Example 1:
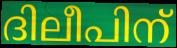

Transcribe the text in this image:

ദിലീപിന്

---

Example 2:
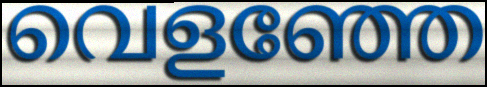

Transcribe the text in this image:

വെളഞ്ഞേ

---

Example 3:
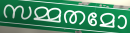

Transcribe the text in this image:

സമ്മതമോ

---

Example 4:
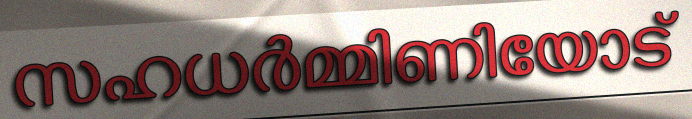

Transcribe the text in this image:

സഹധർമ്മിണിയോട്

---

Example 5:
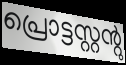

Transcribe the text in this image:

പ്രൊട്ടസ്റ്റന്റു